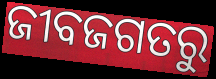
ଜୀବଜଗତରୁ